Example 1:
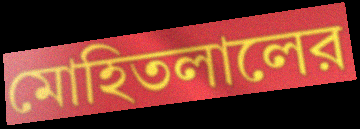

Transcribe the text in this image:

মোহিতলালের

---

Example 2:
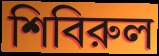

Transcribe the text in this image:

শিবিরুল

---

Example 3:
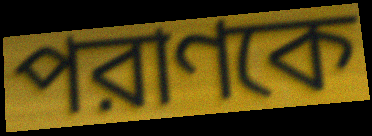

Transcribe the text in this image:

পরাণকে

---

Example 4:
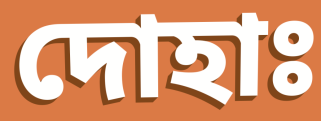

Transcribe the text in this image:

দোহাঃ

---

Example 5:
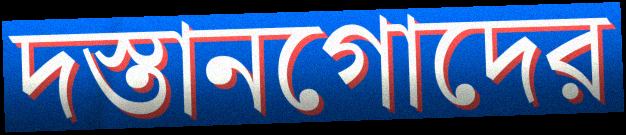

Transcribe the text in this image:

দস্তানগোদের